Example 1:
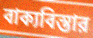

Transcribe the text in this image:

বাক্যবিস্তার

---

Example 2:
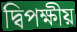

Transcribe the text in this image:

দ্বিপক্ষীয়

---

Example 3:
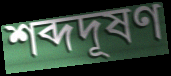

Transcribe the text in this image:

শব্দদূষণ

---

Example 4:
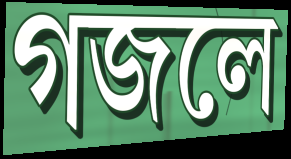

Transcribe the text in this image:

গজলে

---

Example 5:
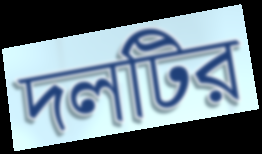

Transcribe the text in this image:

দলটির